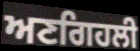
ਅਣਗਿਹਲੀ